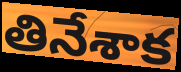
తినేశాక